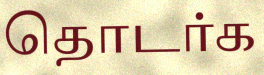
தொடர்க